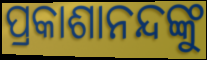
ପ୍ରକାଶାନନ୍ଦଙ୍କୁ